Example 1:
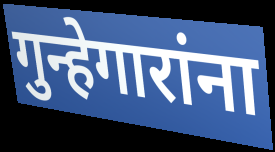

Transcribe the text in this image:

गुन्हेगारांना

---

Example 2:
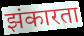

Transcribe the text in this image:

झंकारता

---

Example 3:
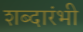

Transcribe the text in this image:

शब्दारंभी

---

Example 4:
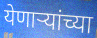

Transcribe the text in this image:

येणाऱ्यांच्या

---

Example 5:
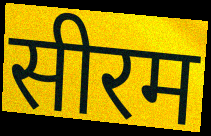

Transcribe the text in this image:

सीरम